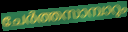
ചേർത്തസാമ്പാറും